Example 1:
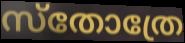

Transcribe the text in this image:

സ്തോത്രേ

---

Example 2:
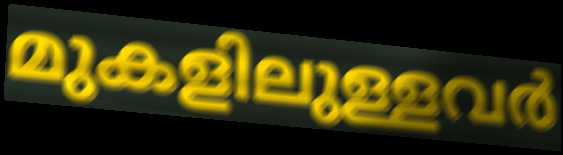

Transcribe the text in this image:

മുകളിലുള്ളവർ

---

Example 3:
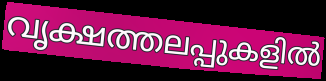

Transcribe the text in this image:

വൃക്ഷത്തലപ്പുകളിൽ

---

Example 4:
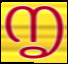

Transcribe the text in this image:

നൃ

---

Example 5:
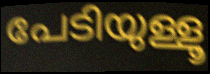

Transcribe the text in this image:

പേടിയുള്ളൂ